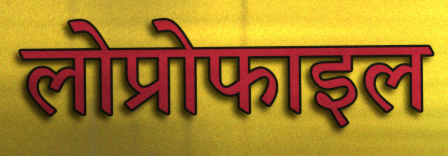
लोप्रोफाइल